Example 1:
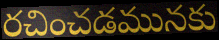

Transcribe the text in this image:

రచించడమునకు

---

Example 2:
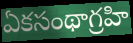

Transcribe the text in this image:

ఏకసంథాగ్రహి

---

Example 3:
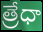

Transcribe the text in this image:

త్రేధా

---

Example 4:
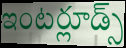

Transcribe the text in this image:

ఇంటర్లూడ్స్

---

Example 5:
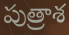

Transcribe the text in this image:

పుత్రాశ